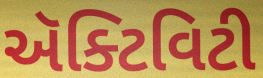
ઍક્ટિવિટી